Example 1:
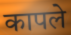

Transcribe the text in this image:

कापले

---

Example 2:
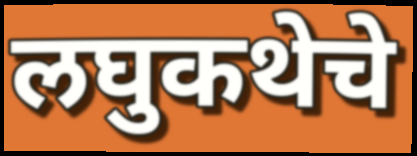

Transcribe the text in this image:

लघुकथेचे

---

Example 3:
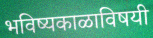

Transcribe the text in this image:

भविष्यकाळाविषयी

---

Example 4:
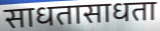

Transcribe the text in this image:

साधतासाधता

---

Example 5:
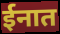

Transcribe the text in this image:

ईनात